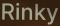
Rinky